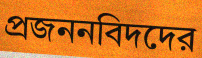
প্রজননবিদদের